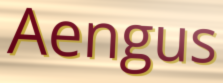
Aengus